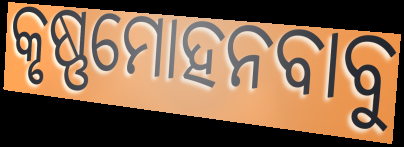
କୃଷ୍ଣମୋହନବାବୁ